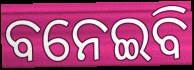
ବନେଇବି